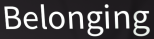
Belonging